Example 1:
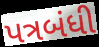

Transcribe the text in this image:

પત્રબંધી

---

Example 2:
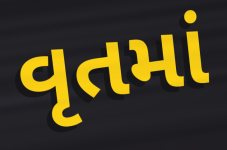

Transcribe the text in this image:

વૃતમાં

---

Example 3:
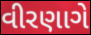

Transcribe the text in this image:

વીરણાગે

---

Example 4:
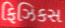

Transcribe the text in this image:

ફિઝિકસ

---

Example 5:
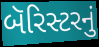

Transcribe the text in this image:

બૅરિસ્ટરનું